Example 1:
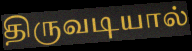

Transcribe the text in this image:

திருவடியால்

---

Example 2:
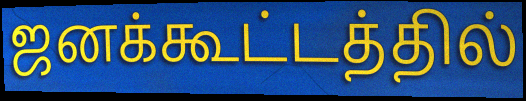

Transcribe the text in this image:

ஜனக்கூட்டத்தில்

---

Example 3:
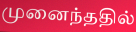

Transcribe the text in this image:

முனைந்ததில்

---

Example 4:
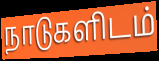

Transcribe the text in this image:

நாடுகளிடம்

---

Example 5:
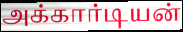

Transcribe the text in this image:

அக்கார்டியன்